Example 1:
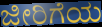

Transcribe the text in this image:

ಜೀರಿಗೆಯ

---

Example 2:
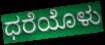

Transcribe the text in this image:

ಧರೆಯೊಳು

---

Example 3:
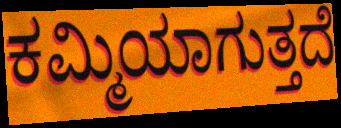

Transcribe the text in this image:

ಕಮ್ಮಿಯಾಗುತ್ತದೆ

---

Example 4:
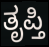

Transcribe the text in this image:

ತೃಪ್ತಿ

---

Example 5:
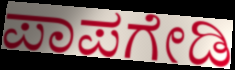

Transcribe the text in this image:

ಪಾಪಗೇಡಿ